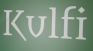
Kulfi